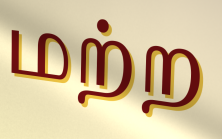
மற்ற